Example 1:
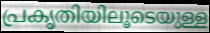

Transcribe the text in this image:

പ്രകൃതിയിലൂടെയുള്ള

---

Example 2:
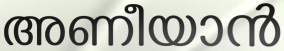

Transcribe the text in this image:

അണീയാൻ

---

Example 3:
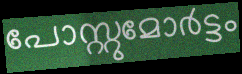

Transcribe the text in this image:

പോസ്റ്റുമോർട്ടം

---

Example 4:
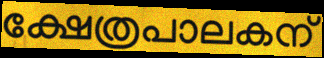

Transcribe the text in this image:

ക്ഷേത്രപാലകന്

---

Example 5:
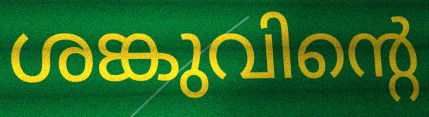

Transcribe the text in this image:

ശങ്കുവിന്റെ